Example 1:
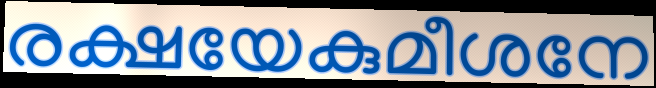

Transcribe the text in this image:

രക്ഷയേകുമീശനേ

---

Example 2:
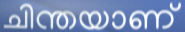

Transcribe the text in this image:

ചിന്തയാണ്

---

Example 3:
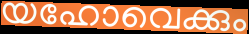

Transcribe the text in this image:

യഹോവെക്കും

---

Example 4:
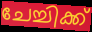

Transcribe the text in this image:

ചേച്ചിക്ക്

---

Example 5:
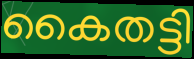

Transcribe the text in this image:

കൈതട്ടി